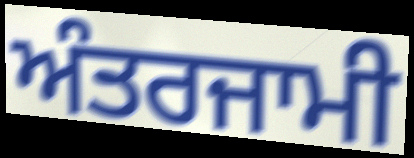
ਅੰਤਰਜਾਮੀ